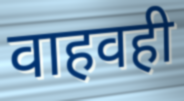
वाहवही